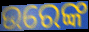
ଉରେଙ୍କ